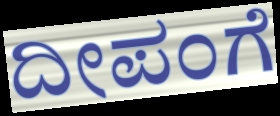
ದೀಪಂಗೆ